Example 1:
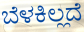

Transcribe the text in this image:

ಬೆಳಕಿಲ್ಲದೆ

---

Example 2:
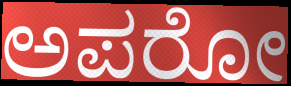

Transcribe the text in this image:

ಅಪರೋ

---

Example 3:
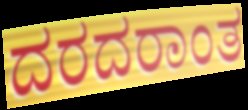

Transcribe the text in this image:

ದರದರಾಂತ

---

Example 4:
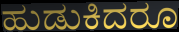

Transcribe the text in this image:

ಹುಡುಕಿದರೂ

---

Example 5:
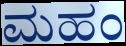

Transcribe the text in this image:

ಮಹಂ